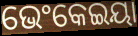
ଭେଂକେଇୟା